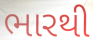
ભારથી